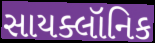
સાયક્લૉનિક